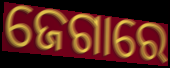
ଜେଗାରେ